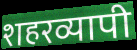
शहरव्यापी